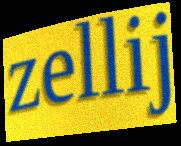
zellij